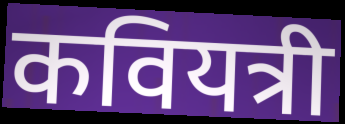
कवियत्री